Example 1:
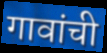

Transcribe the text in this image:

गावांची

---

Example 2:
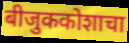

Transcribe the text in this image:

बीजुककोशाचा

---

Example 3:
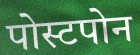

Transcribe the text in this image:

पोस्टपोन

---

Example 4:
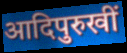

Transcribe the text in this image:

आदिपुरुखीं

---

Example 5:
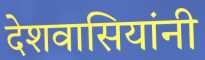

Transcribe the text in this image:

देशवासियांनी